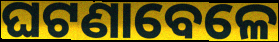
ଘଟଣାବେଳେ